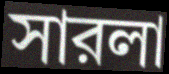
সারলা